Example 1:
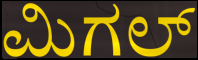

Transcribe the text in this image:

ಮಿಗಲ್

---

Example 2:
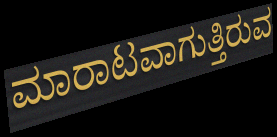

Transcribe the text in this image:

ಮಾರಾಟವಾಗುತ್ತಿರುವ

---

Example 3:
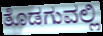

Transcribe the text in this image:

ತೊಡಗುವಲ್ಲಿ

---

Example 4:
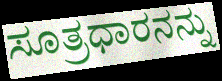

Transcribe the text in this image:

ಸೂತ್ರಧಾರನನ್ನು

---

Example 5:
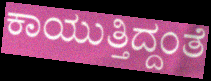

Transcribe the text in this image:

ಕಾಯುತ್ತಿದ್ದಂತೆ